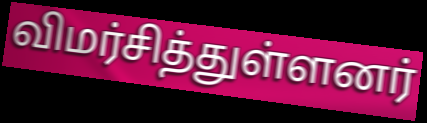
விமர்சித்துள்ளனர்